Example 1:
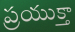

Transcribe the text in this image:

ప్రయుక్తా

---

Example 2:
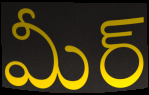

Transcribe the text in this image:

మీర్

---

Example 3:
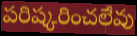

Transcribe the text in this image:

పరిష్కరించలేవు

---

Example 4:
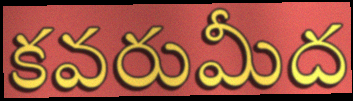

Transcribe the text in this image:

కవరుమీద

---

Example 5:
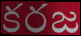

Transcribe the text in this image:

కరజ